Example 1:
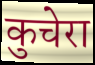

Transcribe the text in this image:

कुचेरा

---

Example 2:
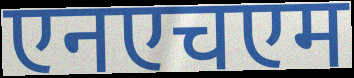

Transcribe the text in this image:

एनएचएम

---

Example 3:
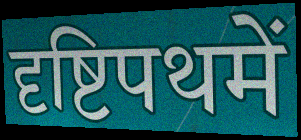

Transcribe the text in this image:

दृष्टिपथमें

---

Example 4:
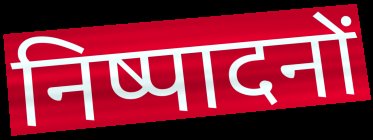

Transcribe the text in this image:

निष्पादनों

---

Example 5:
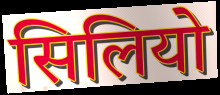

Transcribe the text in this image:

सिलियो